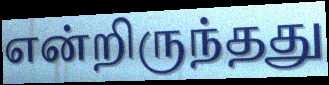
என்றிருந்தது